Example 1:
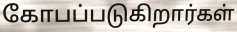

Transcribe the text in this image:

கோபப்படுகிறார்கள்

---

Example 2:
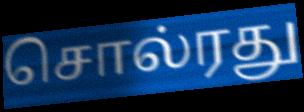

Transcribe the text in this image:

சொல்ரது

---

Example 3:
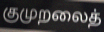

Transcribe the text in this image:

குமுறலைத்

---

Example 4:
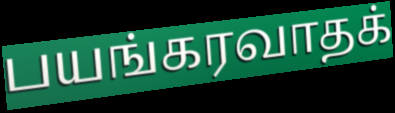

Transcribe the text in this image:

பயங்கரவாதக்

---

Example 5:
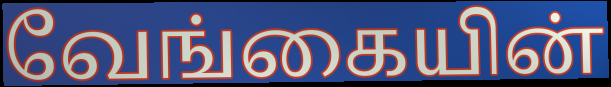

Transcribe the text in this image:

வேங்கையின்